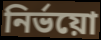
নির্ভয়ো